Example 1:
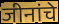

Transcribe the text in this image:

जीनांचे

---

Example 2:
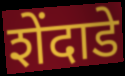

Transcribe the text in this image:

शेंदाडे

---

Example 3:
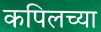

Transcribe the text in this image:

कपिलच्या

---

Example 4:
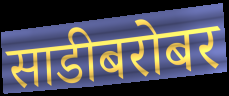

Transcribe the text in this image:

साडीबरोबर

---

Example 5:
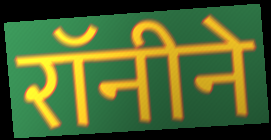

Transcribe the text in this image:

रॉनीने